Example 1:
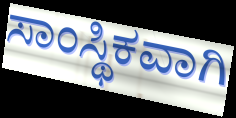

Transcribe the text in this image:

ಸಾಂಸ್ಥಿಕವಾಗಿ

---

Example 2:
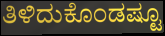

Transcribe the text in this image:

ತಿಳಿದುಕೊಂಡಷ್ಟೂ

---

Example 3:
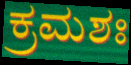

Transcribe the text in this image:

ಕ್ರಮಶಃ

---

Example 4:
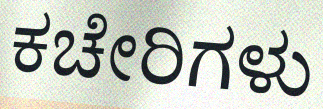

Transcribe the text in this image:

ಕಚೇರಿಗಳು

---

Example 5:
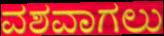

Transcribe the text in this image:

ವಶವಾಗಲು